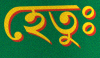
হেতুঃ